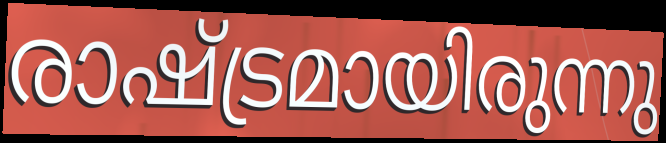
രാഷ്ട്രമായിരുന്നു